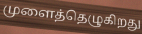
முளைத்தெழுகிறது